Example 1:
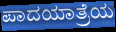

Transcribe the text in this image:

ಪಾದಯಾತ್ರೆಯ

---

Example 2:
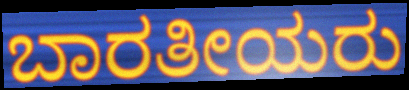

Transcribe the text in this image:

ಬಾರತೀಯರು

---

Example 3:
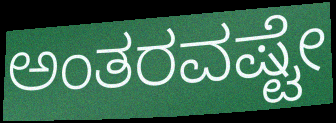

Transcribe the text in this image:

ಅಂತರವಷ್ಟೇ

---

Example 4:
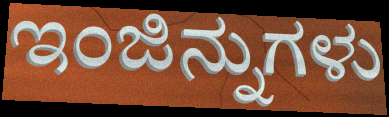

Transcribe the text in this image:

ಇಂಜಿನ್ನುಗಳು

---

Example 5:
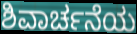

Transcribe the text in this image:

ಶಿವಾರ್ಚನೆಯ